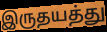
இருதயத்து